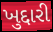
ખુદ્દારી